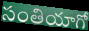
సంతియాగో